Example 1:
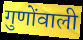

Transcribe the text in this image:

गुणोंवाली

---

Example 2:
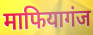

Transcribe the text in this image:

माफियागंज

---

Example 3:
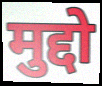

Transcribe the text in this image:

मुद्दो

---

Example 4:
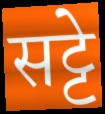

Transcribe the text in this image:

सट्टे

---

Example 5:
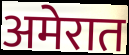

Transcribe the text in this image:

अमेरात